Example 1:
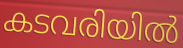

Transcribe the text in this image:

കടവരിയിൽ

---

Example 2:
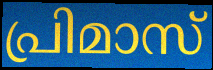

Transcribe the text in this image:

പ്രിമാസ്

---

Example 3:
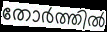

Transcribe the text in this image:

തോർത്തിൽ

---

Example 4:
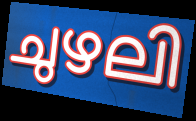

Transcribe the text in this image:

ചുഴലി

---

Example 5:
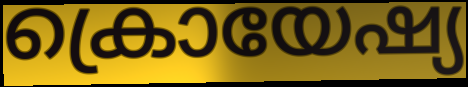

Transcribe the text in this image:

ക്രൊയേഷ്യ